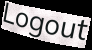
Logout